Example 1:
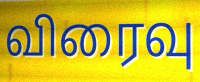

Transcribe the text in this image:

விரைவு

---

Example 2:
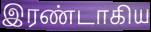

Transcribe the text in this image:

இரண்டாகிய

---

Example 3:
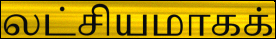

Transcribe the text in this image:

லட்சியமாகக்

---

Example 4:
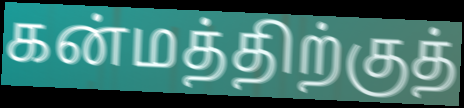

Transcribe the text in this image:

கன்மத்திற்குத்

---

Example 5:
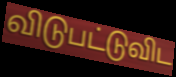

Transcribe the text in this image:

விடுபட்டுவிட